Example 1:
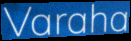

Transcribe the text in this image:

Varaha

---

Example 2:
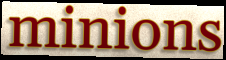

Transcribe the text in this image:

minions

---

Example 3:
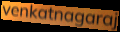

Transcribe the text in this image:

venkatnagaraj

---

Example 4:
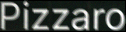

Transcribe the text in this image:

Pizzaro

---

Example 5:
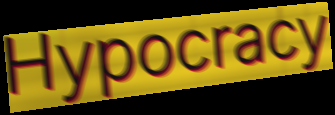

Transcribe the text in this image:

Hypocracy